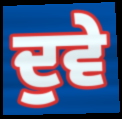
ਦੁਵੇ